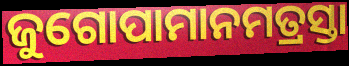
ଜୁଗୋପାମାନମତ୍ରସ୍ତା